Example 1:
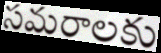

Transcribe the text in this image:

సమరాలకు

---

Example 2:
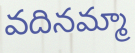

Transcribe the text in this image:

వదినమ్మా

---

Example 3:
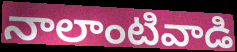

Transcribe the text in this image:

నాలాంటివాడి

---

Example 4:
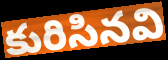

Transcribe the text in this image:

కురిసినవి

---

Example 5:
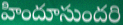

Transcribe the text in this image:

హిందూసుందరి